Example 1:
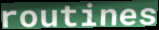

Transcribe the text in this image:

routines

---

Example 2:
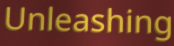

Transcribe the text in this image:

Unleashing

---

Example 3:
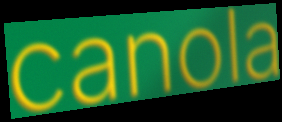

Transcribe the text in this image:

canola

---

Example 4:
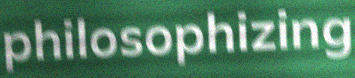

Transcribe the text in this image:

philosophizing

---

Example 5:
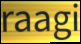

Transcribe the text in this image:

raagi